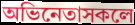
অভিনেতাসকলে